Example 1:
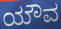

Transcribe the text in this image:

ಯೌವ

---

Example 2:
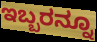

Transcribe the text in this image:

ಇಬ್ಬರನ್ನೂ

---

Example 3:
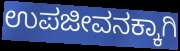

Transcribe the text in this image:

ಉಪಜೀವನಕ್ಕಾಗಿ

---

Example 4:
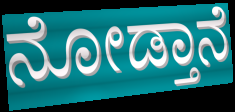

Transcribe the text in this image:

ನೋಡ್ತಾನೆ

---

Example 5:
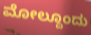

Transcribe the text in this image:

ಮೋಲ್ದೂಂದು